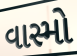
વાસ્મો